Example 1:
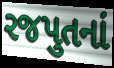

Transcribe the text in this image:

રજપુતનાં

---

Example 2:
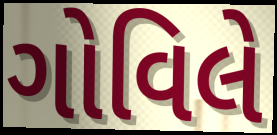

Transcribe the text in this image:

ગોવિલે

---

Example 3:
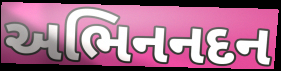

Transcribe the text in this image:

અભિનનદન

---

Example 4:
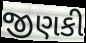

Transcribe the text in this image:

જીણકી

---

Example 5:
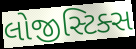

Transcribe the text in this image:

લોજીસ્ટિક્સ